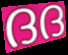
ദദ